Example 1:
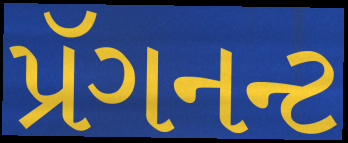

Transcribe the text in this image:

પ્રૅગનન્ટ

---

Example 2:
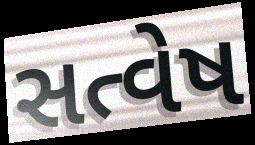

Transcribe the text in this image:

સત્વેષ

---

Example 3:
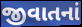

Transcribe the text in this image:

જીવાતનાં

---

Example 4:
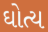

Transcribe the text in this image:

ઘોત્ય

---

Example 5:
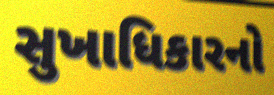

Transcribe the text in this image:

સુખાધિકારનો